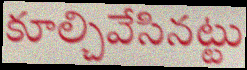
కూల్చివేసినట్టు